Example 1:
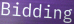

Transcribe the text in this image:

Bidding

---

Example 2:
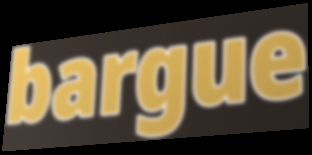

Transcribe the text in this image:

bargue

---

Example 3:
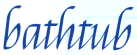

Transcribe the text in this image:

bathtub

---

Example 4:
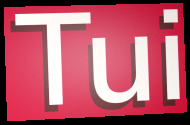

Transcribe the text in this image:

Tui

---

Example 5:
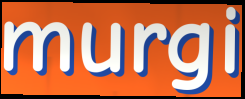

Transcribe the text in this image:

murgi